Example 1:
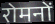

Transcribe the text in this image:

रोमनों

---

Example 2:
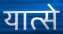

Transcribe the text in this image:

यात्से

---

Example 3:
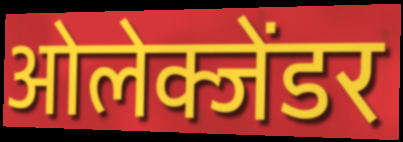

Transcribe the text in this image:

ओलेक्जेंडर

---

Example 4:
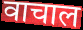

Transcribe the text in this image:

वाचाल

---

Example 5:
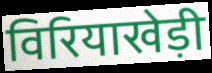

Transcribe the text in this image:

विरियाखेड़ी